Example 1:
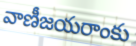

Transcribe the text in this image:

వాణీజయరాంకు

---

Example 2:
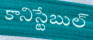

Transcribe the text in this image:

కానిస్టేబుల్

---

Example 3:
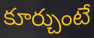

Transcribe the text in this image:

కూర్చుంటే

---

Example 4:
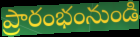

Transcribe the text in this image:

ప్రారంభంనుండి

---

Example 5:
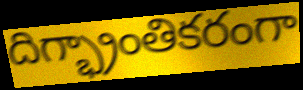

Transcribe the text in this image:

దిగ్భ్రాంతికరంగా